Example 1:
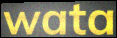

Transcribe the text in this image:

wata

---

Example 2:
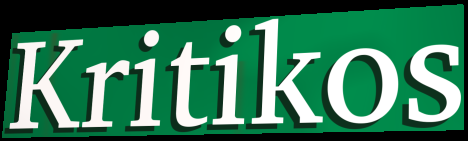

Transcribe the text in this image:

Kritikos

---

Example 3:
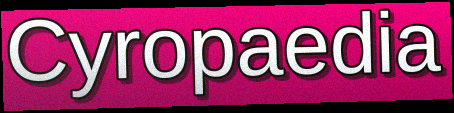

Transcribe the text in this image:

Cyropaedia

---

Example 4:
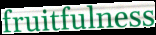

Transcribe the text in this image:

fruitfulness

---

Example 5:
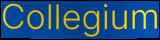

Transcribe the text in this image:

Collegium